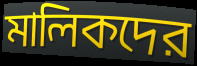
মালিকদের